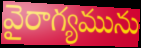
వైరాగ్యమును